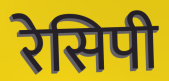
रेसिपी